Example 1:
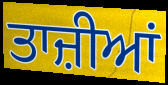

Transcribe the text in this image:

ਤਾਜ਼ੀਆਂ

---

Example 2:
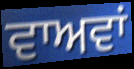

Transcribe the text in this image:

ਵਾਅਵਾਂ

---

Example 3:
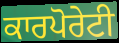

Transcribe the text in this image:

ਕਾਰਪੋਰੇਟੀ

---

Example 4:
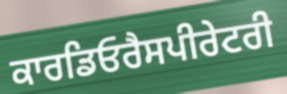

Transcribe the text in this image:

ਕਾਰਡਿਓਰੈਸਪੀਰੇਟਰੀ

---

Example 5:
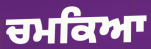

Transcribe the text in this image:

ਚਮਕਿਆ